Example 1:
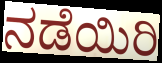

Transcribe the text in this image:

ನಡೆಯಿರಿ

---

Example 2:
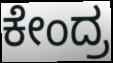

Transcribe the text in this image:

ಕೇಂದ್ರ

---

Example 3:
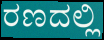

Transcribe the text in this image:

ರಣದಲ್ಲಿ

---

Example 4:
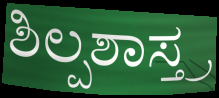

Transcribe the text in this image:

ಶಿಲ್ಪಶಾಸ್ತ್ರ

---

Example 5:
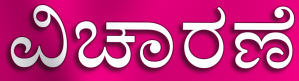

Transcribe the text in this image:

ವಿಚಾರಣೆ